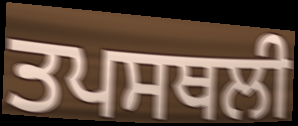
ਤਪਸਥਲੀ